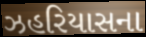
ઝહરિયાસના